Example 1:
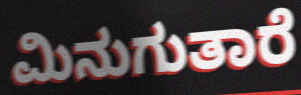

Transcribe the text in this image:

ಮಿನುಗುತಾರೆ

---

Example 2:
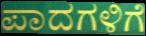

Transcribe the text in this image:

ಪಾದಗಳಿಗೆ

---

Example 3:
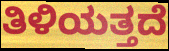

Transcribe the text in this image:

ತಿಳಿಯತ್ತದೆ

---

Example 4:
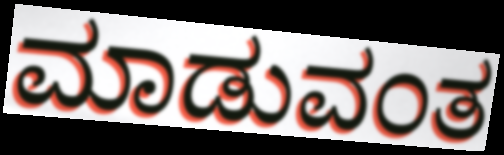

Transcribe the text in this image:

ಮಾಡುವಂತ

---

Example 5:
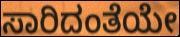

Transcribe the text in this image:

ಸಾರಿದಂತೆಯೇ